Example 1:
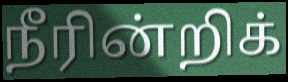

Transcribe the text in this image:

நீரின்றிக்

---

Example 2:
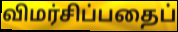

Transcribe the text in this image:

விமர்சிப்பதைப்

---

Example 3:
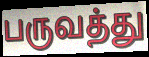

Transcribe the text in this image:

பருவத்து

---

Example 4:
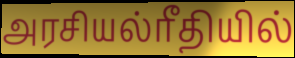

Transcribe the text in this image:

அரசியல்ரீதியில்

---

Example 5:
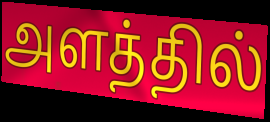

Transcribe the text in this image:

அளத்தில்